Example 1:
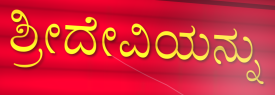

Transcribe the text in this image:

ಶ್ರೀದೇವಿಯನ್ನು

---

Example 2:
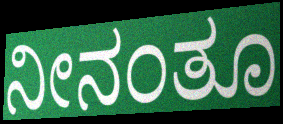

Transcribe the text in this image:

ನೀನಂತೂ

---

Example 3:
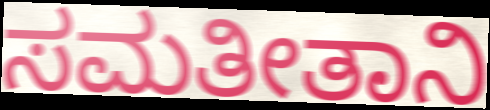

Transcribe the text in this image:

ಸಮತೀತಾನಿ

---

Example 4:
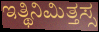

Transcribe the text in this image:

ಇತ್ಥಿನಿಮಿತ್ತಸ್ಸ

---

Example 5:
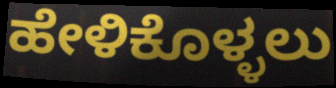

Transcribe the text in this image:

ಹೇಳಿಕೊಳ್ಳಲು